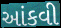
આંકવી